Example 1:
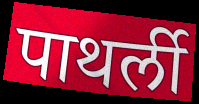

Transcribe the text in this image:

पाथर्ली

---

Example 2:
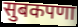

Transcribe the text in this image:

सुबकपणा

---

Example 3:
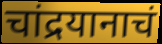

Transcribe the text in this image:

चांद्रयानाचं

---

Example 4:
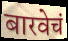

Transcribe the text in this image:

बारवेचं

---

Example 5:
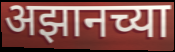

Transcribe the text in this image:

अझानच्या